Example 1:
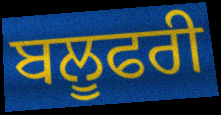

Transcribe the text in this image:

ਬਲੂਫਰੀ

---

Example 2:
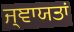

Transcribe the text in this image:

ਜ੍ਞਾਯਤਾਂ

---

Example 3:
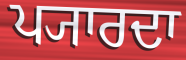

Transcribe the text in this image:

ਪ੍ਯਾਰਦਾ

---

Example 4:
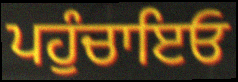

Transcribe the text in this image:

ਪਹੁੰਚਾਇਓ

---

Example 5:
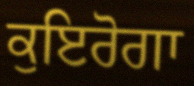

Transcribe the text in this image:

ਕੁਇਰੋਗਾ